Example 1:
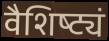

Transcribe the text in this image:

वैशिष्ट्यं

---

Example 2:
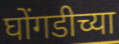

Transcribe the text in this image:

घोंगडीच्या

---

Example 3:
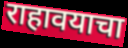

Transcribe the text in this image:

राहावयाचा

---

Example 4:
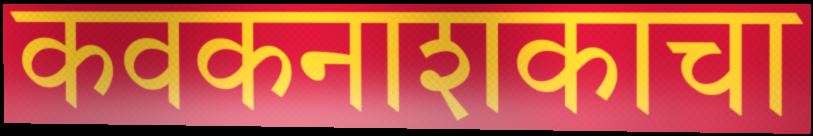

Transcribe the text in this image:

कवकनाशकाचा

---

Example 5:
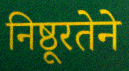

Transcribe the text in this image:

निष्ठूरतेने